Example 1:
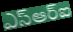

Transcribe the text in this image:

ఎస్ఆర్ఐ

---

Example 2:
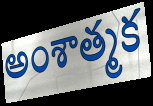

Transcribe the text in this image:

అంశాత్మక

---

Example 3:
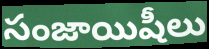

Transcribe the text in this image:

సంజాయిషీలు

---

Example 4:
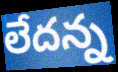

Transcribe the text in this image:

లేదన్న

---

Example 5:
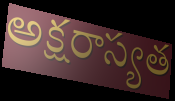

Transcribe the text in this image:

అక్షరాస్యత